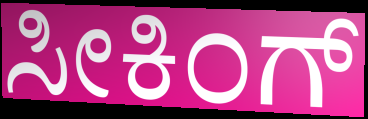
ಸೀಕಿಂಗ್